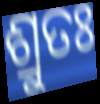
ଶ୍ରୁତଃ